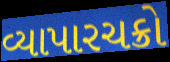
વ્યાપારચક્રો